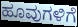
ಹೂವುಗಳಿಗೆ